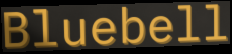
Bluebell